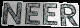
NEER